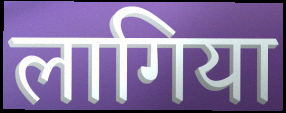
लागिया